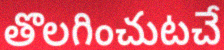
తొలగించుటచే